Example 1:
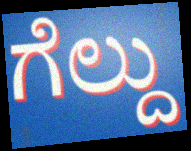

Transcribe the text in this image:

ಗೆಲ್ದು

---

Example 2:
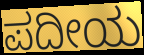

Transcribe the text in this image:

ಪದೀಯ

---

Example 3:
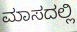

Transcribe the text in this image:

ಮಾಸದಲ್ಲಿ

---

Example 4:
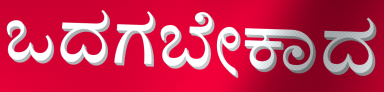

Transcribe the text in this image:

ಒದಗಬೇಕಾದ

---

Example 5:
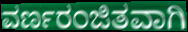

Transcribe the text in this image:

ವರ್ಣರಂಜಿತವಾಗಿ